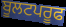
ਬੂਲਟਪਰੂਫ